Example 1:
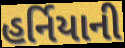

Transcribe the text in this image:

હર્નિયાની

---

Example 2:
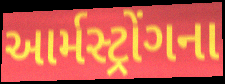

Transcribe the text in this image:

આર્મસ્ટ્રોંગના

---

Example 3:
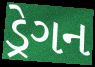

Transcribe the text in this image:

ડ્રેગન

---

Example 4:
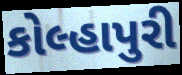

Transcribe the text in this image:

કોલ્હાપુરી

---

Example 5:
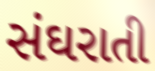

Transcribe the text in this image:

સંઘરાતી